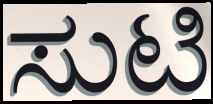
ಸುಟಿ